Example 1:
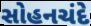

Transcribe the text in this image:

સોહનચંદે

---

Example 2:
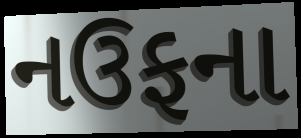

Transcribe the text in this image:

નઉફના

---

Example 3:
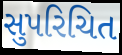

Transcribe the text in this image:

સુપરિચિત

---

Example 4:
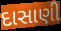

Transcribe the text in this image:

દાસાણી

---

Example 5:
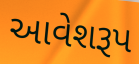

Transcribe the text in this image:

આવેશરૂપ